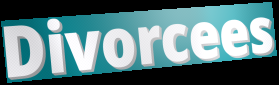
Divorcees